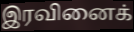
இரவினைக்